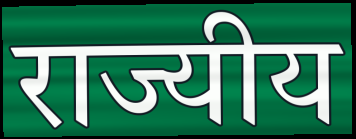
राज्यीय